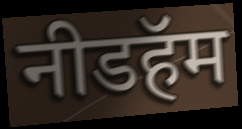
नीडहॅम